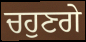
ਚਹੁਣਗੇ